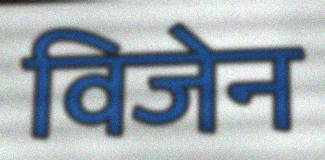
विजेन